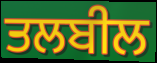
ਤਲਬੀਲ